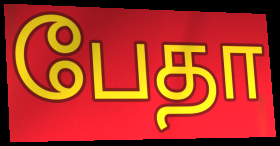
பேதா